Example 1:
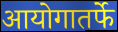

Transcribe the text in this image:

आयोगातर्फे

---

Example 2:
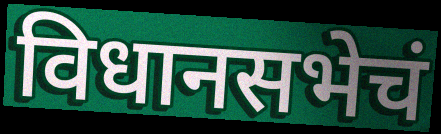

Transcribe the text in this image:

विधानसभेचं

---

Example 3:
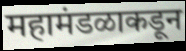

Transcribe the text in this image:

महामंडळाकडून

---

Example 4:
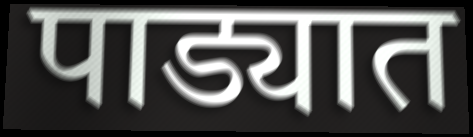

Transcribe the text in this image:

पाड्यात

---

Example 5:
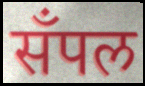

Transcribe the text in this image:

सँपल